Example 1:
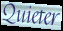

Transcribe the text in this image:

Quieter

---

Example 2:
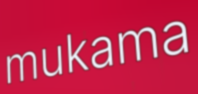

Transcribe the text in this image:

mukama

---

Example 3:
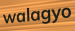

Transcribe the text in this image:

walagyo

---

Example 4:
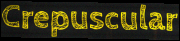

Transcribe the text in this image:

Crepuscular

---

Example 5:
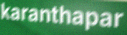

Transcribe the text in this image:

karanthapar